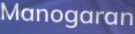
Manogaran